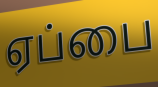
ஏப்பை